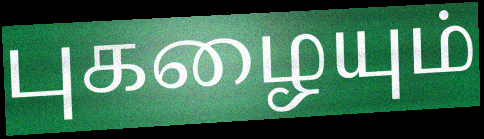
புகழையும்